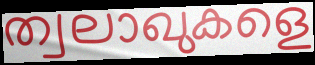
ത്വലാഖുകളെ